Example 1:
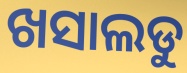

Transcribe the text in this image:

ଖସାଲଡୁ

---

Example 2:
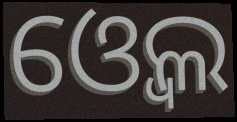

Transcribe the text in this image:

ଓ୍ବେଲ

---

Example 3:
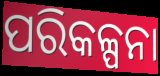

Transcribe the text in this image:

ପରିକଳ୍ପନା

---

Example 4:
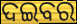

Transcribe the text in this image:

ଦଇବର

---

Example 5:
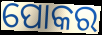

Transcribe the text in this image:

ପୋକର